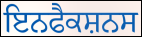
ਇਨਫੈਕਸ਼ਨਸ